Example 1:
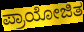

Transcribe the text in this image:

ಪ್ರಾಯೋಜಿತ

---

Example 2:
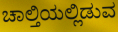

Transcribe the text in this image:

ಚಾಲ್ತಿಯಲ್ಲಿಡುವ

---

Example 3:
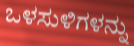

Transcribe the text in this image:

ಒಳಸುಳಿಗಳನ್ನು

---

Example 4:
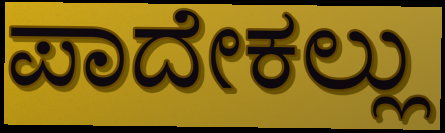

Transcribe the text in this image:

ಪಾದೇಕಲ್ಲು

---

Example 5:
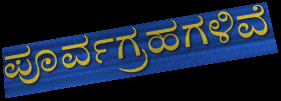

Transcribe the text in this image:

ಪೂರ್ವಗ್ರಹಗಳಿವೆ